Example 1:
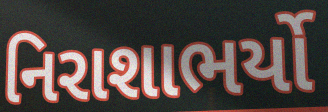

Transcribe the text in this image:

નિરાશાભર્યો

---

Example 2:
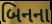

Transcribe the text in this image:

બિનના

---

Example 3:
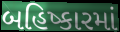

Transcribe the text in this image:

બહિષ્કારમાં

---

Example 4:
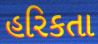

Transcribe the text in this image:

હરિકતા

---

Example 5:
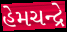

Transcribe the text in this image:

હેમચન્દ્રે